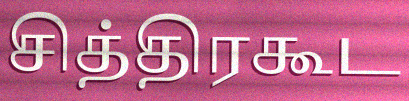
சித்திரகூட